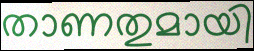
താണതുമായി